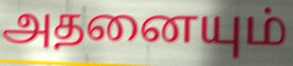
அதனையும்